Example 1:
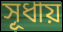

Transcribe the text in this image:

সূধায়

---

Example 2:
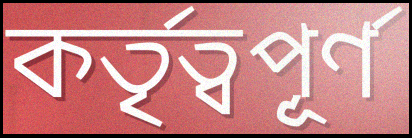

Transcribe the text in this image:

কর্তৃত্বপূর্ণ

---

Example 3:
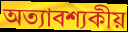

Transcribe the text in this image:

অত্যাবশ্যকীয়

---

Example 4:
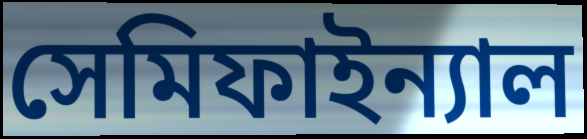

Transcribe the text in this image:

সেমিফাইন্যাল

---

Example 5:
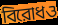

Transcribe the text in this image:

বিরোধও